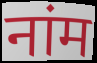
नांम